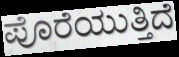
ಪೊರೆಯುತ್ತಿದೆ